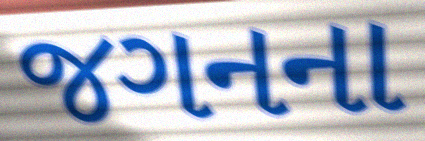
જગનના